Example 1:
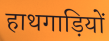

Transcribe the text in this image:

हाथगाड़ियों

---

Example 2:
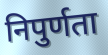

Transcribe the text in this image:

निपुर्णता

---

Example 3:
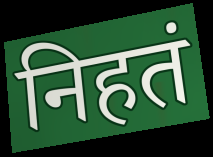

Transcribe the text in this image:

निहतं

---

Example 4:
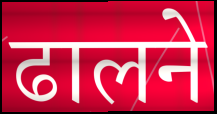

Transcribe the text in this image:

ढालने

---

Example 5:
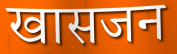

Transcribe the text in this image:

खासजन